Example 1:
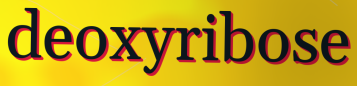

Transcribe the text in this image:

deoxyribose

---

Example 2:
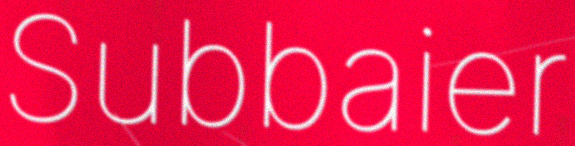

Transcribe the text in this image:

Subbaier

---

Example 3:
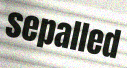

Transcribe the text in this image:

sepalled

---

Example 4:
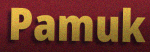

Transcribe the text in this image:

Pamuk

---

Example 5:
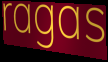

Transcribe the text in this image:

ragas